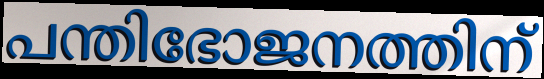
പന്തിഭോജനത്തിന്